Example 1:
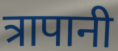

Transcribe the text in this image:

त्रापानी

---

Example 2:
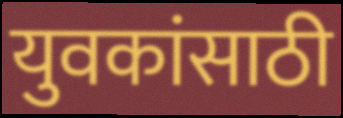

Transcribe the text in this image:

युवकांसाठी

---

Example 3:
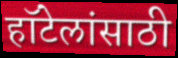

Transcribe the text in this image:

हॉटेलांसाठी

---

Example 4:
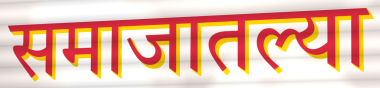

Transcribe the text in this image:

समाजातल्‍या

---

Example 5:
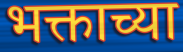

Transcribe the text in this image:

भक्ताच्या